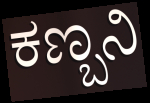
ಕಣ್ಬನಿ